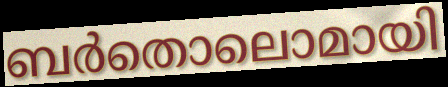
ബർതൊലൊമായി